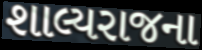
શાલ્યરાજના